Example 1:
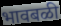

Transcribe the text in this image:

भावबळी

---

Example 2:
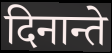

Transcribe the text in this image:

दिनान्ते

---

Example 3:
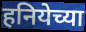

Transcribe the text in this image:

हनियेच्या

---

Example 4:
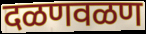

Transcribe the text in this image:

दळणवळण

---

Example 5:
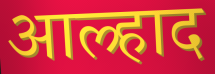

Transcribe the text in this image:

आल्हाद